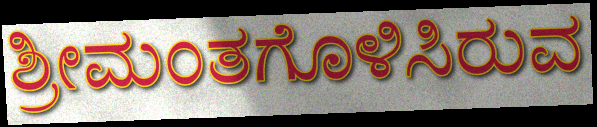
ಶ್ರೀಮಂತಗೊಳಿಸಿರುವ